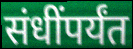
संधींपर्यंत